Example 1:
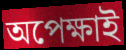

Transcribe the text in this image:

অপেক্ষাই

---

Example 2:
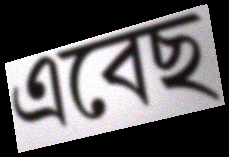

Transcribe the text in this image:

এবেছ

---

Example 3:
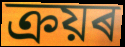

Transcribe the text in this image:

ক্ৰয়ৰ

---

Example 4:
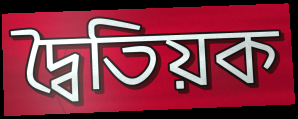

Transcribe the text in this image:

দ্বৈতিয়ক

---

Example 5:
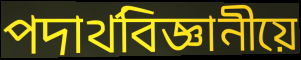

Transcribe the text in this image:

পদাৰ্থবিজ্ঞানীয়ে